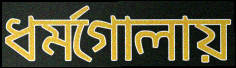
ধর্মগোলায়